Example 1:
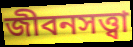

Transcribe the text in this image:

জীবনসত্ত্বা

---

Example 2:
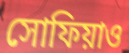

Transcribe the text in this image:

সোফিয়াও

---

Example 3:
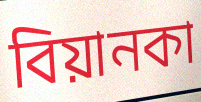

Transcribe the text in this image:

বিয়ানকা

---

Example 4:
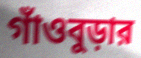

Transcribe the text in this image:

গাঁওবুড়ার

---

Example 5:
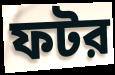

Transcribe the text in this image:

ফটর